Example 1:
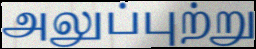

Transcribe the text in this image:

அலுப்புற்று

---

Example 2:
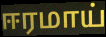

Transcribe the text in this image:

ஈரமாய்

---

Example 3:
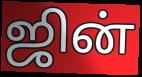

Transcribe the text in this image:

ஜின்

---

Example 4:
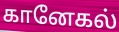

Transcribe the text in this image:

கானேகல்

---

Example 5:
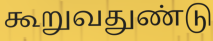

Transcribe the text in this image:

கூறுவதுண்டு